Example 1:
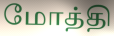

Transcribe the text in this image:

மோத்தி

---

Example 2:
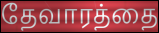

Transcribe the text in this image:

தேவாரத்தை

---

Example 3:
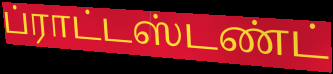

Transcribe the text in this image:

ப்ராட்டஸ்டண்ட்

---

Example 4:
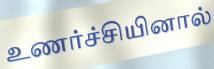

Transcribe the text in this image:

உணர்ச்சியினால்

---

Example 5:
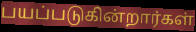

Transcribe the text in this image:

பயப்படுகின்றார்கள்